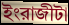
ইংরাজীটা